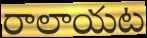
రాలాయట